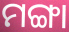
ମଙ୍ଗା